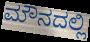
ಮೌನದಲ್ಲಿ